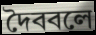
দৈববলে